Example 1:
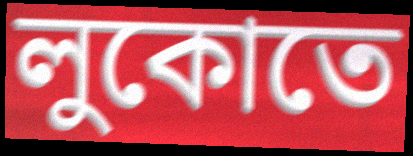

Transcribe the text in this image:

লুকোতে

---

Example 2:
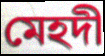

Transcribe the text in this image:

মেহদী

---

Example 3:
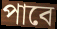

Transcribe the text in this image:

পাবে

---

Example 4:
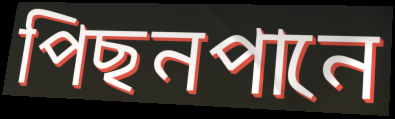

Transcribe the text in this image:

পিছনপানে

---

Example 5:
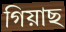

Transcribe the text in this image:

গিয়াছ